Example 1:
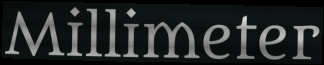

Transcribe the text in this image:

Millimeter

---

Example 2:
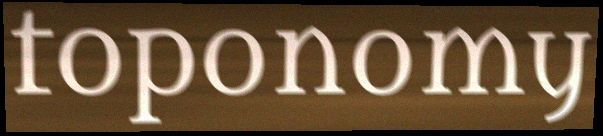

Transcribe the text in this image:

toponomy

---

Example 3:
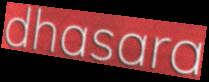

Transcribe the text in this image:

dhasara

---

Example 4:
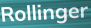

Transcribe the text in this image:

Rollinger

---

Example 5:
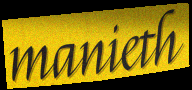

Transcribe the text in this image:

manieth